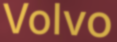
Volvo